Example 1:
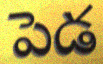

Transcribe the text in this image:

పెడ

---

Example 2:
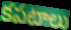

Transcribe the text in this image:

కపటాలు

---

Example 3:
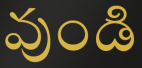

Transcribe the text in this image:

వుండి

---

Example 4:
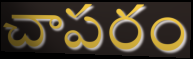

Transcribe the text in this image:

చాపరం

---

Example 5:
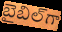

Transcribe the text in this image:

బైబిల్‌గా